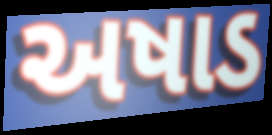
અષાડ